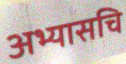
अभ्यासचि